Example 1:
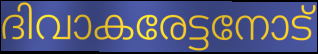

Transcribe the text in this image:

ദിവാകരേട്ടനോട്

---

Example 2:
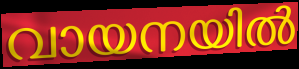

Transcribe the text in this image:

വായനയിൽ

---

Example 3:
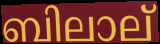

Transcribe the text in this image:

ബിലാല്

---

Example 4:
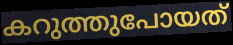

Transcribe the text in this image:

കറുത്തുപോയത്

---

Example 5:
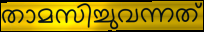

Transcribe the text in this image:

താമസിച്ചുവന്നത്